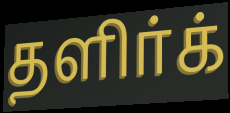
தளிர்க்